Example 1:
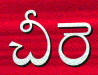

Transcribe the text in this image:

చీరె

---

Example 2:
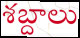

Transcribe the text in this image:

శబ్దాలు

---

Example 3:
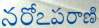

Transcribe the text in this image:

నరోఽపరాణి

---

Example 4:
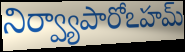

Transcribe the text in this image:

నిర్వ్యాపారోఽహమ్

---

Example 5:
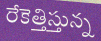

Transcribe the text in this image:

రేకెత్తిస్తున్న